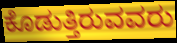
ಕೊಡುತ್ತಿರುವವರು